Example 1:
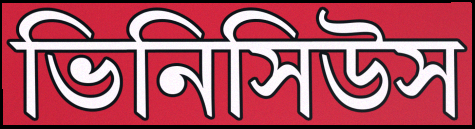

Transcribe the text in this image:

ভিনিসিউস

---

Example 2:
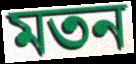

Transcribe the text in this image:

মতন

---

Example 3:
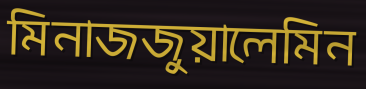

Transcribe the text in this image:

মিনাজজুয়ালেমিন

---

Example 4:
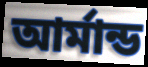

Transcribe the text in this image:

আর্মান্ড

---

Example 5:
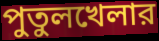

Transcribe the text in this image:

পুতুলখেলার